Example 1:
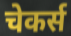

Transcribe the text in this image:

चेकर्स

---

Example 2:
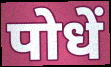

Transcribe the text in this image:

पोधें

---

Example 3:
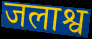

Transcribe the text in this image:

जलाश्व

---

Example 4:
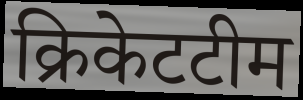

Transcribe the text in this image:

क्रिकेटटीम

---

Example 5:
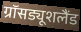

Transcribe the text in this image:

ग्रॉसड्यूशलैंड